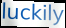
luckily